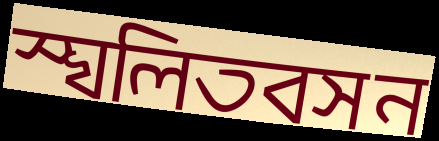
স্খলিতবসন